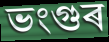
ভংগুৰ